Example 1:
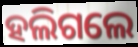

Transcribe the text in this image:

ହଲିଗଲେ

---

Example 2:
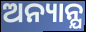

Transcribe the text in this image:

ଅନ୍ୟାନ୍ଯ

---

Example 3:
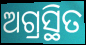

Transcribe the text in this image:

ଅଗ୍ରସ୍ଥିତ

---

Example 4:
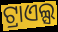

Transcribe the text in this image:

ଟ୍ରାଏଲ୍ସ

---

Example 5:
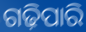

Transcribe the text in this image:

ଗଢ଼ିପାରି